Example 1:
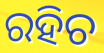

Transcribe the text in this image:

ରହିଚ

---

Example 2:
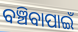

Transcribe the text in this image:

ବଞ୍ଚିବାପାଇଁ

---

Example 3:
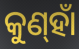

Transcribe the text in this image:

କୁଣ୍‌ହାଁ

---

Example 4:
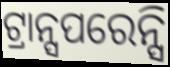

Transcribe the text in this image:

ଟ୍ରାନ୍ସପରେନ୍ସି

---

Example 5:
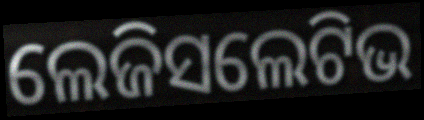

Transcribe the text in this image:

ଲେଜିସଲେଟିଭ